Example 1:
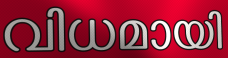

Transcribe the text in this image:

വിധമായി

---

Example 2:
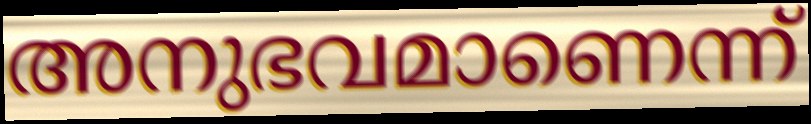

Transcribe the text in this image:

അനുഭവമാണെന്ന്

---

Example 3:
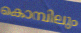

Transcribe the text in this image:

കൊമ്പിലും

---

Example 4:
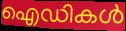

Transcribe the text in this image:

ഐഡികൾ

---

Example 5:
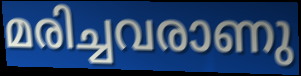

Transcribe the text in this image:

മരിച്ചവരാണു